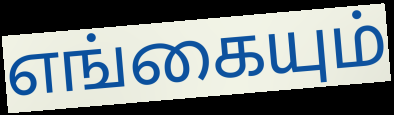
எங்கையும்